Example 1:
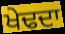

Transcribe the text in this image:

ਖੇਢਦਾ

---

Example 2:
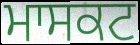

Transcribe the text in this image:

ਮਾਸਕਟ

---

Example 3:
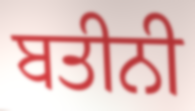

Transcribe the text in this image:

ਬਤੀਨੀ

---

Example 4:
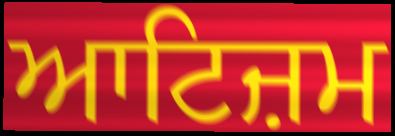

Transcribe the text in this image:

ਆਟਿਜ਼ਮ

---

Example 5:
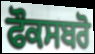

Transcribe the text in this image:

ਫੌਕਸਬਰੋ